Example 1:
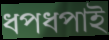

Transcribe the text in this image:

ধপধপাই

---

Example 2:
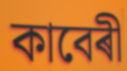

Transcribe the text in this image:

কাবেৰী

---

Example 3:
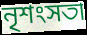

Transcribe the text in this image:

নৃশংসতা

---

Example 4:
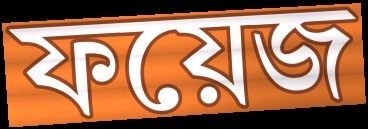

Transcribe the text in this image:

ফয়েজ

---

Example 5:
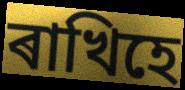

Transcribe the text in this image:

ৰাখিহে